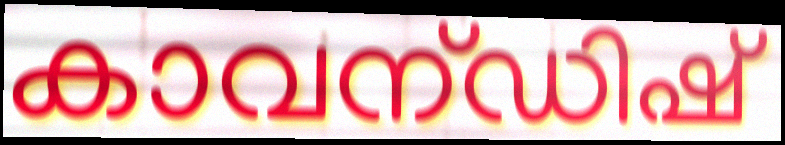
കാവന്ഡിഷ്